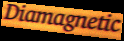
Diamagnetic